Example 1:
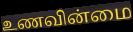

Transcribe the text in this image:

உணவின்மை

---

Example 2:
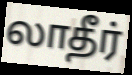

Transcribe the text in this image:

லாதீர்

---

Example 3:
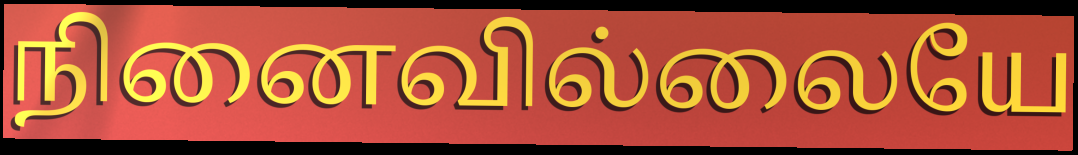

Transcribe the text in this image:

நினைவில்லையே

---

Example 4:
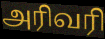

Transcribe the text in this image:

அரிவரி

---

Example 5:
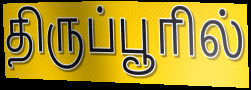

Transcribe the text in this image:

திருப்பூரில்